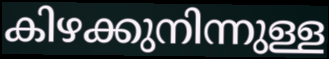
കിഴക്കുനിന്നുള്ള